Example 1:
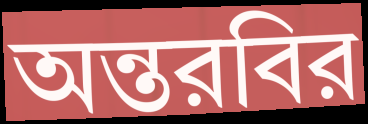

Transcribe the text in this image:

অন্তরবির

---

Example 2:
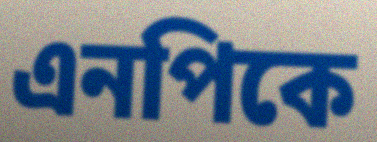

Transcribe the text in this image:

এনপিকে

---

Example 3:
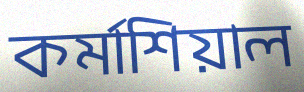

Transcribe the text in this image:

কর্মাশিয়াল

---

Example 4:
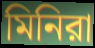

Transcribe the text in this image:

মিনিরা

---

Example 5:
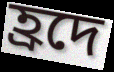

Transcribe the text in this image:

হ্রদে